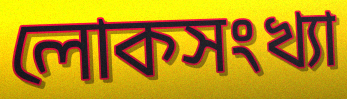
লোকসংখ্যা